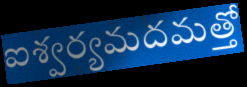
ఐశ్వర్యమదమత్తో